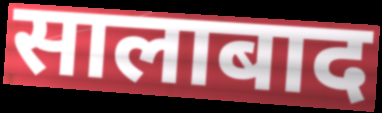
सालाबाद